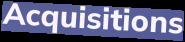
Acquisitions